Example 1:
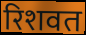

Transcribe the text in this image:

रिशवत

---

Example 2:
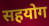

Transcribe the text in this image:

सहयोग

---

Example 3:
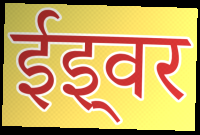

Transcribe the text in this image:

ईइ्वर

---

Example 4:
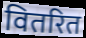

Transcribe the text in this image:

वितरित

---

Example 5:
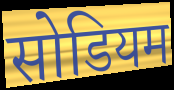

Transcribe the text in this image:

सोडियम